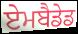
ਏਮਬੈਡੇਡ